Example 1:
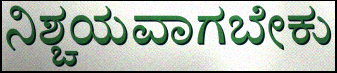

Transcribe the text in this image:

ನಿಶ್ಚಯವಾಗಬೇಕು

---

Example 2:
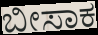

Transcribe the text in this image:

ಬೀಸಾಕ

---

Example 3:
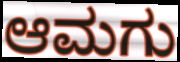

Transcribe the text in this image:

ಆಮಗು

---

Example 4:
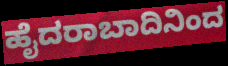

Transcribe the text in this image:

ಹೈದರಾಬಾದಿನಿಂದ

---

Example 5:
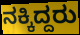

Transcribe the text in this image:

ನಕ್ಕಿದ್ದರು